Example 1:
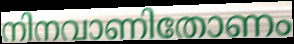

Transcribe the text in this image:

നിനവാണിതോണം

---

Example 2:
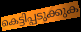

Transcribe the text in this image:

കെട്ടിപ്പടുക്കുക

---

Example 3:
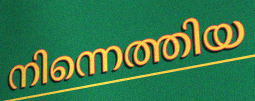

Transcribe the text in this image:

നിന്നെത്തിയ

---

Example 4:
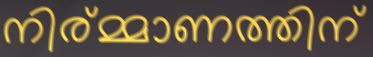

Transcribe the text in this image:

നിര്മ്മാണത്തിന്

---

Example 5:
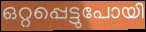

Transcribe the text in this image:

ഒറ്റപ്പെട്ടുപോയി